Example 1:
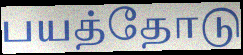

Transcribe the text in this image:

பயத்தோடு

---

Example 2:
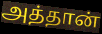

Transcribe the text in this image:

அத்தான்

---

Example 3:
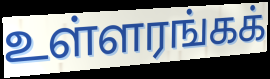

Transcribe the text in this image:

உள்ளரங்கக்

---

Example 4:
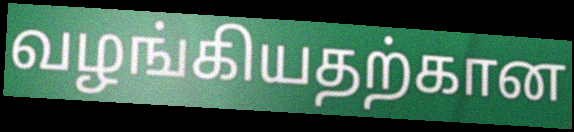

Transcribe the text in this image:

வழங்கியதற்கான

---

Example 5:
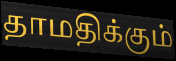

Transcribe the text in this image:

தாமதிக்கும்